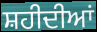
ਸ਼ਹੀਦੀਆਂ